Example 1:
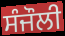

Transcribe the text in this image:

ਸੰਜੌਲੀ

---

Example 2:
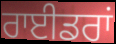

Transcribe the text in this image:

ਰਾਈਡਰਾਂ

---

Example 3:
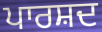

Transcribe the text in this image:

ਪਾਰਸ਼ਦ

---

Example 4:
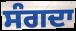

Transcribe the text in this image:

ਸੰਗਦਾ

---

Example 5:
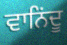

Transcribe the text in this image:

ਵਾਨਿਂਦੂ